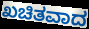
ಖಚಿತವಾದ